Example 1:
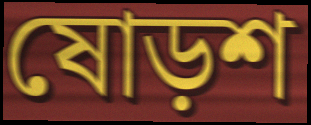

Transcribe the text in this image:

ষোড়শ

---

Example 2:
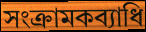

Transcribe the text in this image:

সংক্রামকব্যাধি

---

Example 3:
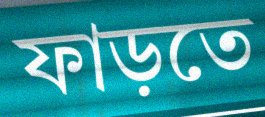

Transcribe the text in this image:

ফাড়তে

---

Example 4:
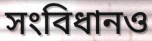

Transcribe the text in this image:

সংবিধানও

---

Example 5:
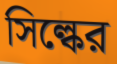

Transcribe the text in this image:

সিল্কের